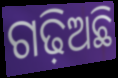
ଗଢ଼ିଅଛି